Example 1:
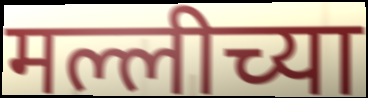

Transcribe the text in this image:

मल्लीच्या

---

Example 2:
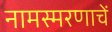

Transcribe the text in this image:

नामस्मरणाचें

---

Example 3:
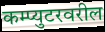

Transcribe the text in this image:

कम्प्युटरवरील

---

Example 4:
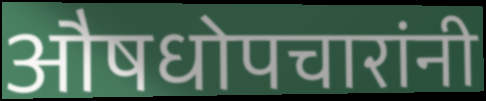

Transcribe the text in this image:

औषधोपचारांनी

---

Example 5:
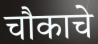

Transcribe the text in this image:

चौकाचे